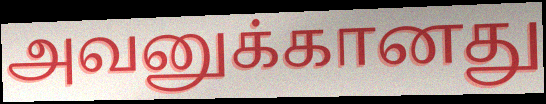
அவனுக்கானது